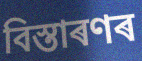
বিস্তাৰণৰ